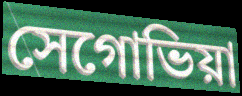
সেগোভিয়া